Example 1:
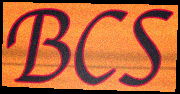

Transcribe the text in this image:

BCS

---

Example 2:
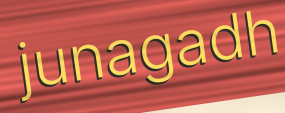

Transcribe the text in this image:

junagadh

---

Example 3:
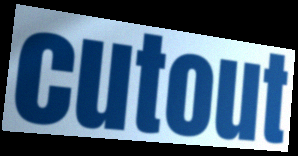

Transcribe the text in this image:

cutout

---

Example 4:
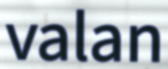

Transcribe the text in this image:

valan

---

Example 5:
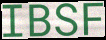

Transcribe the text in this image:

IBSF